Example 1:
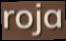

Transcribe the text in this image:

roja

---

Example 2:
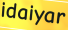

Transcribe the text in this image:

idaiyar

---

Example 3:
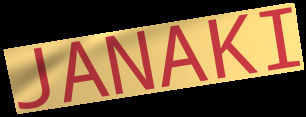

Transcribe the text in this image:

JANAKI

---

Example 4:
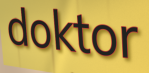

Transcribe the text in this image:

doktor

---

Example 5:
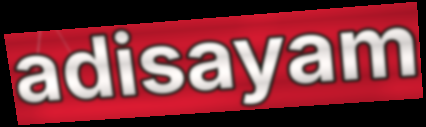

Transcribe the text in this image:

adisayam